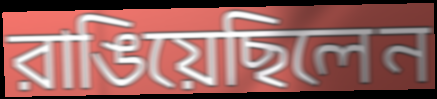
রাঙিয়েছিলেন